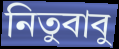
নিতুবাবু